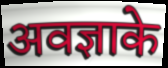
अवज्ञाके